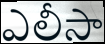
ఎలీసా